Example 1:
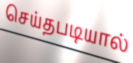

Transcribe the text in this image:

செய்தபடியால்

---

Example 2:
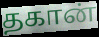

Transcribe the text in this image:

தகான்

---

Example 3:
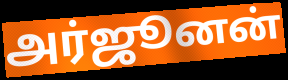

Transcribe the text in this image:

அர்ஜூனன்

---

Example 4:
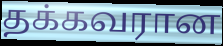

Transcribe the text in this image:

தக்கவரான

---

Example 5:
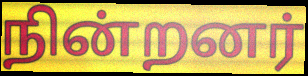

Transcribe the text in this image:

நின்றனர்